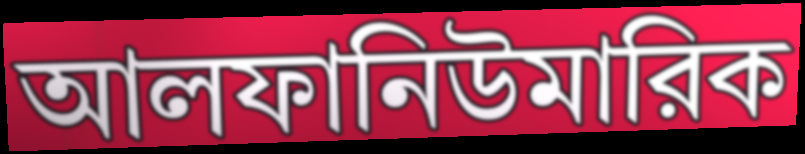
আলফানিউমারিক